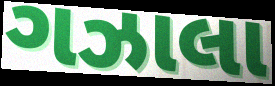
ગઝાલા